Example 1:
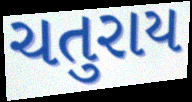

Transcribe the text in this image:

ચતુરાય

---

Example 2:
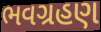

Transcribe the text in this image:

ભવગ્રહણ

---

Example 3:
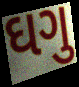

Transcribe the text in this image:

ઘગુ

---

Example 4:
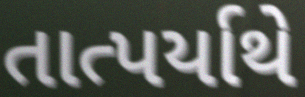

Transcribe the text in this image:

તાત્પર્યાથે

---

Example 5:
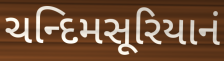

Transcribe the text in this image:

ચન્દિમસૂરિયાનં